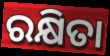
ରକ୍ଷିତା